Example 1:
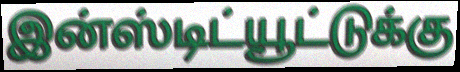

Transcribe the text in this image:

இன்ஸ்டிட்யூட்டுக்கு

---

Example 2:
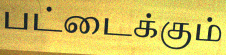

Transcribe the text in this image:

பட்டைக்கும்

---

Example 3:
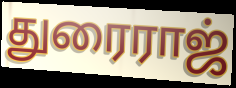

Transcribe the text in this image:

துரைராஜ்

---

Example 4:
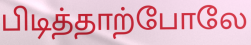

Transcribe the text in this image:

பிடித்தாற்போலே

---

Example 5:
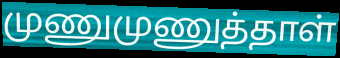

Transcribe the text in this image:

முணுமுணுத்தாள்